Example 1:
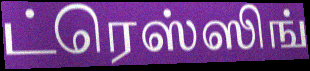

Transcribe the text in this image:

ட்ரெஸ்ஸிங்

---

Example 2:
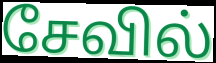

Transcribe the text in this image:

சேவில்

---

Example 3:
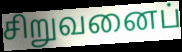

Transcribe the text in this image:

சிறுவனைப்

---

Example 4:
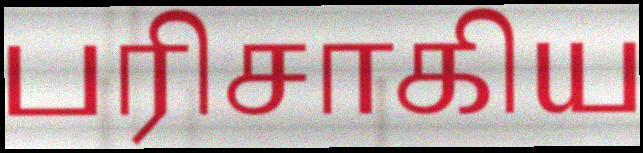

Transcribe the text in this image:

பரிசாகிய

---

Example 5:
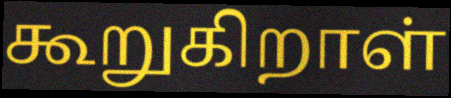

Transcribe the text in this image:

கூறுகிறாள்